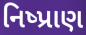
નિષ્પ્રાણ